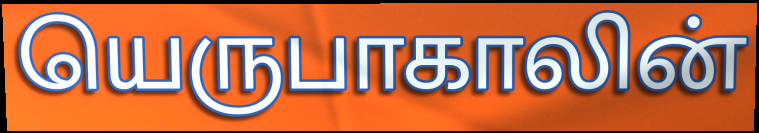
யெருபாகாலின்